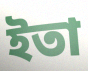
ইতা